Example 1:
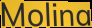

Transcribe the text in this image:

Molina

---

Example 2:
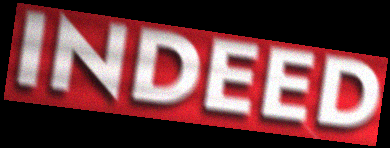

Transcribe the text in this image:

INDEED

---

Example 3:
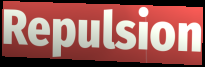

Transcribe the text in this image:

Repulsion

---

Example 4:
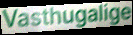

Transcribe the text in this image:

Vasthugalige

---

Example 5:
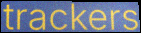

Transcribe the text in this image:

trackers